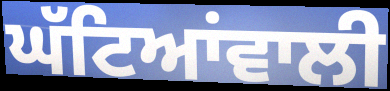
ਘੱਟਿਆਂਵਾਲੀ